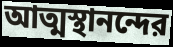
আত্মস্থানন্দের